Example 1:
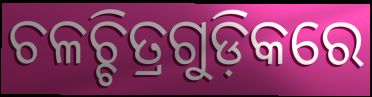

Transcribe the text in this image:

ଚଳଚ୍ଚିତ୍ରଗୁଡ଼ିକରେ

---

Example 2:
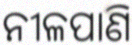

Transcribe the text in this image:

ନୀଳପାଣି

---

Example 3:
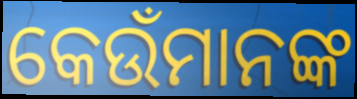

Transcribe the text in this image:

କେଉଁମାନଙ୍କ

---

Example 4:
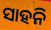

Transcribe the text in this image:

ସାହନି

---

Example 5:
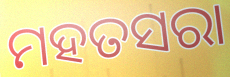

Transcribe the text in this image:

ମହତସରା